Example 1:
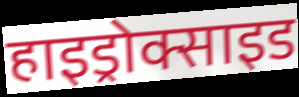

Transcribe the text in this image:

हाइड्रोक्साइड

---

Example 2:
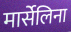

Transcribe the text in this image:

मार्सेलिना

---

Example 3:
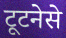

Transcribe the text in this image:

टूटनेसे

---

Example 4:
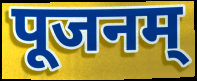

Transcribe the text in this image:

पूजनम्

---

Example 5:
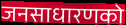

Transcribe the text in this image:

जनसाधारणको